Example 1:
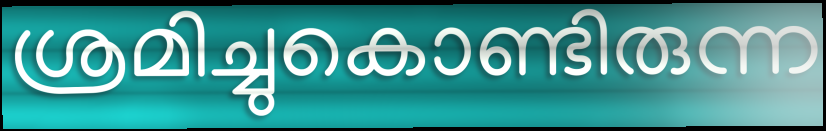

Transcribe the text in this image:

ശ്രമിച്ചുകൊണ്ടിരുന്ന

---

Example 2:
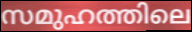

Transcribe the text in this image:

സമുഹത്തിലെ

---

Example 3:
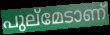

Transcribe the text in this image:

പുല്മേടാണ്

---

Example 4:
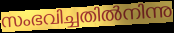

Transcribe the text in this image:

സംഭവിച്ചതിൽനിന്നു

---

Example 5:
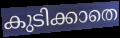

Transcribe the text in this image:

കുടിക്കാതെ